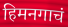
हिमनगाचं